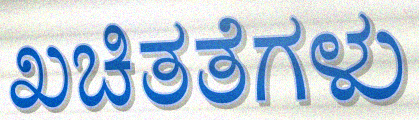
ಖಚಿತತೆಗಳು